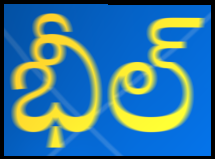
భీల్